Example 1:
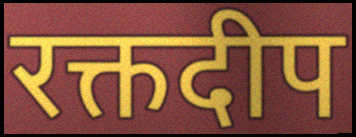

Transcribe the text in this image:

रक्तदीप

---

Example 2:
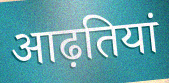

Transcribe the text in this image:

आढ़तियां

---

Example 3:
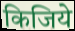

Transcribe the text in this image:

किजिये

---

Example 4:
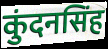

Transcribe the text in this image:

कुंदनसिंह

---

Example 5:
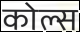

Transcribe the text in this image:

कोल्स